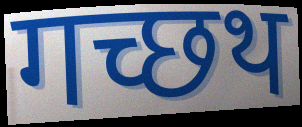
गच्छथ